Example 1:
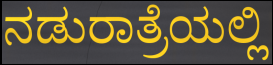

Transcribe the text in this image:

ನಡುರಾತ್ರೆಯಲ್ಲಿ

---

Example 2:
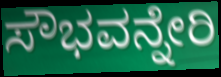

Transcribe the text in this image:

ಸೌಭವನ್ನೇರಿ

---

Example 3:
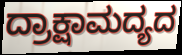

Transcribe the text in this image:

ದ್ರಾಕ್ಷಾಮದ್ಯದ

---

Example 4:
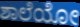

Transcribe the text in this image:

ಶಾಲೆಯೋ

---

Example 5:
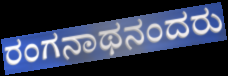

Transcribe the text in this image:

ರಂಗನಾಥನಂದರು